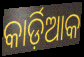
କାର୍ଡ଼ିଆକ